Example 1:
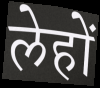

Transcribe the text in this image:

लेहों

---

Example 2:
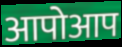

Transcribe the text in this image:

आपोआप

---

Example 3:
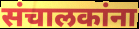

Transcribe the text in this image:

संचालकांना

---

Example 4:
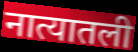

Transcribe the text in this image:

नात्यातली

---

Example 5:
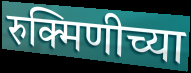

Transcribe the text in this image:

रुक्मिणीच्या